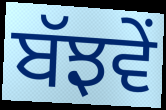
ਬੱਝਵੇਂ